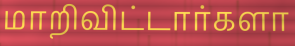
மாறிவிட்டார்களா